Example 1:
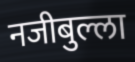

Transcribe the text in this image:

नजीबुल्ला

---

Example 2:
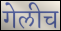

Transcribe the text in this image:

गेलीच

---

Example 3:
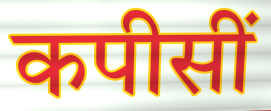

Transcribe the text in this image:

कपीसीं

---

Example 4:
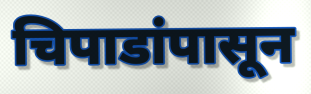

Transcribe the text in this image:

चिपाडांपासून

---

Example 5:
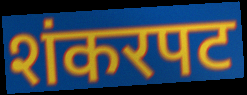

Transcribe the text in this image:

शंकरपट